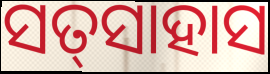
ସତ୍‌ସାହାସ